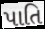
પાતિ